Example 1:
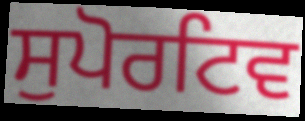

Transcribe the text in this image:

ਸੁਪੋਰਟਿਵ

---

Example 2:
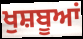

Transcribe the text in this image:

ਖੁਸ਼ਬੂਆਂ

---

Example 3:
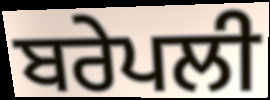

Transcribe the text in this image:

ਬਰੇਪਲੀ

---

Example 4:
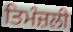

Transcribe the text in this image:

ਤਿਮੰਜ਼ਲੀ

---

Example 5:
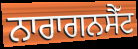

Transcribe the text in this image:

ਨਾਰਾਗਨਸੈੱਟ